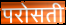
परोसती